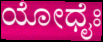
ಯೋಧೈಃ